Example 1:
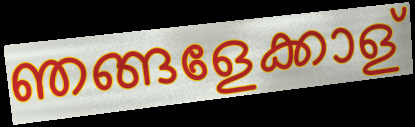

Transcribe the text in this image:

ഞങ്ങളേക്കാള്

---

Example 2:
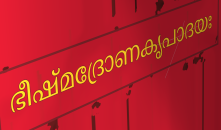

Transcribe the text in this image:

ഭീഷ്മദ്രോണകൃപാദയഃ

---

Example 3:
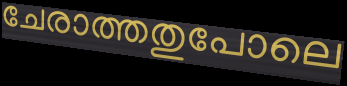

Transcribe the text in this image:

ചേരാത്തതുപോലെ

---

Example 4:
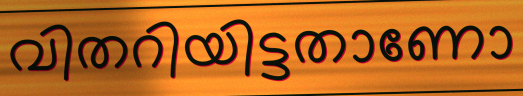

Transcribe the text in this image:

വിതറിയിട്ടതാണോ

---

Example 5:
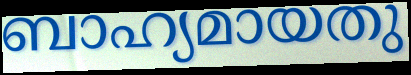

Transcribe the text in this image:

ബാഹ്യമായതു